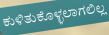
ಕುಳಿತುಕೊಳ್ಳಲಾಗಲಿಲ್ಲ